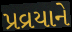
પ્રવ્રયાને